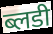
ब्लडी